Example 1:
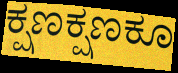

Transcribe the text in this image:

ಕ್ಷಣಕ್ಷಣಕೂ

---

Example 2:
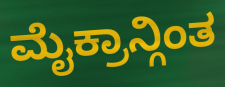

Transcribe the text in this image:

ಮೈಕ್ರಾನ್ಗಿಂತ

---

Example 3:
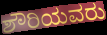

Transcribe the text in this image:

ಶೌರಿಯವರು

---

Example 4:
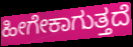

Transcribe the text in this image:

ಹೀಗೇಕಾಗುತ್ತದೆ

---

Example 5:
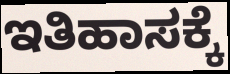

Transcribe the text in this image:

ಇತಿಹಾಸಕ್ಕೆ